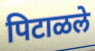
पिटाळले